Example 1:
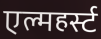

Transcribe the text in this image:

एल्महर्स्ट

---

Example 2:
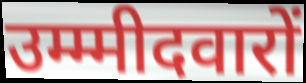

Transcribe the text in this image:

उम्म्मीदवारों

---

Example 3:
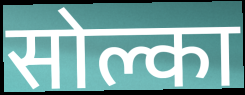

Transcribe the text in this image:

सोल्का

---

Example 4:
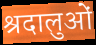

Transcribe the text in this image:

श्रदालुओं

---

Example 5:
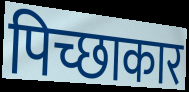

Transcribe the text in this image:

पिच्छाकार